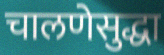
चालणेसुद्धा